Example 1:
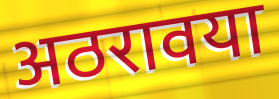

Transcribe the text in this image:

अठरावया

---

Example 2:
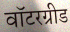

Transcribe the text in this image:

वॉटरग्रीड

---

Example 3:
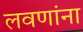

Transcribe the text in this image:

लवणांना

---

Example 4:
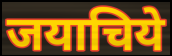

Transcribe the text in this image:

जयाचिये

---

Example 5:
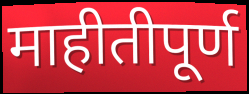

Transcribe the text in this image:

माहीतीपूर्ण